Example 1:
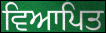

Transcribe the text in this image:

ਵਿਆਪਿਤ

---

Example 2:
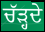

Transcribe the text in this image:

ਚੱੜ੍ਹਦੇ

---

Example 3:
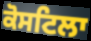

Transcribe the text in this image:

ਕੋਸਟਿਲਾ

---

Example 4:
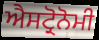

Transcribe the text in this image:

ਐਸਟ੍ਰੋਨੋਮੀ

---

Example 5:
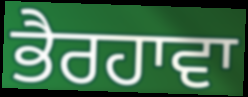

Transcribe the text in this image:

ਭੈਰਹਾਵਾ